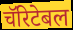
चॅरिटेबल